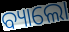
ବ୍ୟାଲୋ